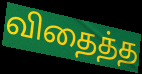
விதைத்த